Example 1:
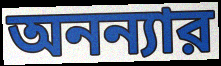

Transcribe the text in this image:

অনন্যার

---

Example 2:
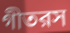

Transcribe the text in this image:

গীতরস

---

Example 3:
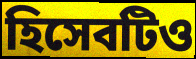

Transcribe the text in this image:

হিসেবটিও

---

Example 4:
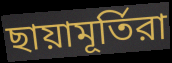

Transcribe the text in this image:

ছায়ামূর্তিরা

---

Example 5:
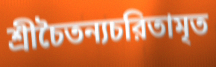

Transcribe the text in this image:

শ্রীচৈতন্যচরিতামৃত